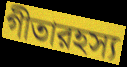
গীতারহস্য